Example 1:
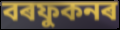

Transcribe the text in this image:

বৰফুকনৰ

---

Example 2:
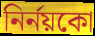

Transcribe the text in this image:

নিৰ্নয়কো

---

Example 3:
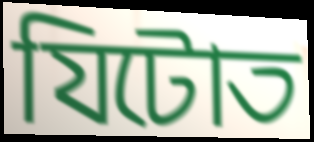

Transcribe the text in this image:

যিটোত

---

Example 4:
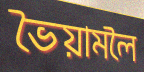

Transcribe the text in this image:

ভৈয়ামলৈ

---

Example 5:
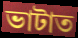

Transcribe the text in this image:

ভাটাত